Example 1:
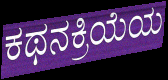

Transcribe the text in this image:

ಕಥನಕ್ರಿಯೆಯ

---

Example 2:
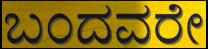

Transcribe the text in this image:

ಬಂದವರೇ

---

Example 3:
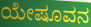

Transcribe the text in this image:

ಯೇಷೂವನ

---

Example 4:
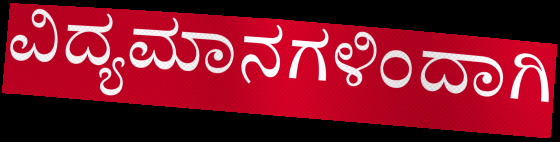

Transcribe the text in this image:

ವಿದ್ಯಮಾನಗಳಿಂದಾಗಿ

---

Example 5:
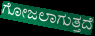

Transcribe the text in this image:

ಗೋಜಲಾಗುತ್ತದೆ